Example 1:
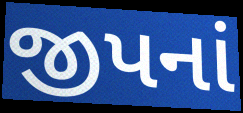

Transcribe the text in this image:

જીપનાં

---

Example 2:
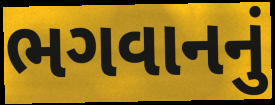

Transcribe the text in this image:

ભગવાનનું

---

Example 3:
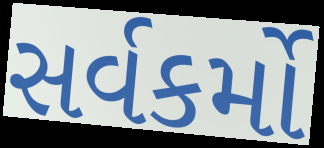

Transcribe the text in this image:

સર્વકર્મો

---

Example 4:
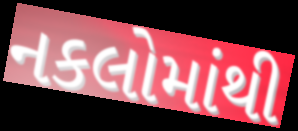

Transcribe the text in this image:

નકલોમાંથી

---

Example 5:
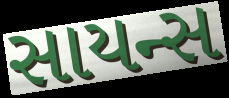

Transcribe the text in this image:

સાયન્સ